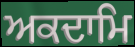
ਅਕਦਾਮਿ